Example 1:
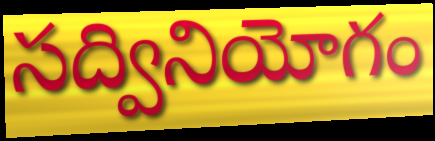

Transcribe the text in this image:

సద్వినియోగం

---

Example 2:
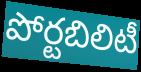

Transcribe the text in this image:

పోర్టబిలిటీ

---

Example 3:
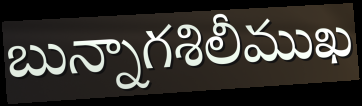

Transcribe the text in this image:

బున్నాగశిలీముఖ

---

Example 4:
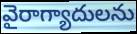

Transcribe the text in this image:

వైరాగ్యాదులను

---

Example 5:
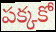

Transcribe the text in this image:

పక్కకో